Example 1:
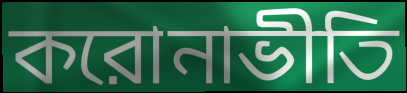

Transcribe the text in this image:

করোনাভীতি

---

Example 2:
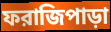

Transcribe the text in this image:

ফরাজিপাড়া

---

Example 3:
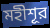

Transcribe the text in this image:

মহীশূর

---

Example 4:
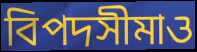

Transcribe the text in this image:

বিপদসীমাও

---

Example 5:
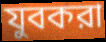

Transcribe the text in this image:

যুবকরা